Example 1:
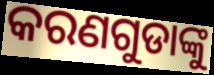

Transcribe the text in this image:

କରଣଗୁଡାଙ୍କୁ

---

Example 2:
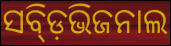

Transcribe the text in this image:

ସବ୍ଡ଼ିଭିଜନାଲ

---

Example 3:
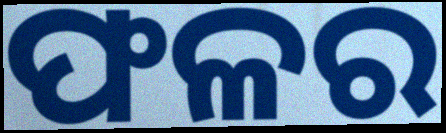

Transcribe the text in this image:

ଫଳର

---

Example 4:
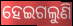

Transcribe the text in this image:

ହେଇଗଲୁଣି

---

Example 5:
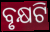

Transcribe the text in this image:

ବୃକ୍ଷଟି